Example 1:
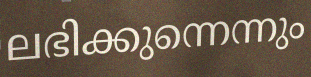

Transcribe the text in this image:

ലഭിക്കുന്നെന്നും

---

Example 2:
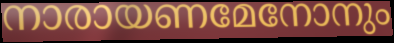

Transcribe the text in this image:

നാരായണമേനോനും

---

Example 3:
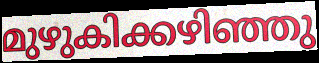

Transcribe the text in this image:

മുഴുകിക്കഴിഞ്ഞു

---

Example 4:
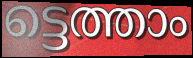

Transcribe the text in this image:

ട്ടെത്താം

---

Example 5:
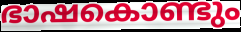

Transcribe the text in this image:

ഭാഷകൊണ്ടും